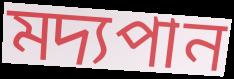
মদ্যপান